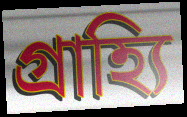
গ্রাহ্যি